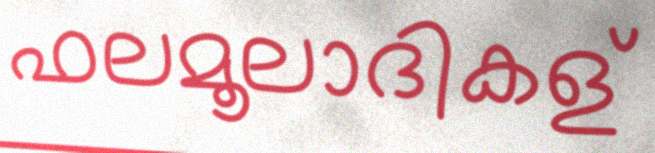
ഫലമൂലാദികള്